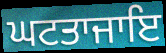
ਘਟਤਾਜਾਇ